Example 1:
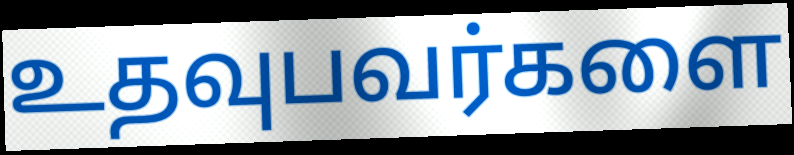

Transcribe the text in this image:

உதவுபவர்களை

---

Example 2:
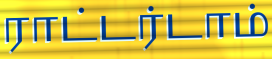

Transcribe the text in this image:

ராட்டர்டாம்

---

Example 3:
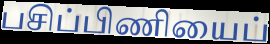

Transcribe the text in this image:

பசிப்பிணியைப்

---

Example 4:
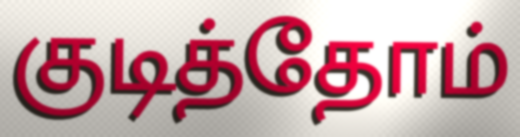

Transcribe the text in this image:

குடித்தோம்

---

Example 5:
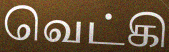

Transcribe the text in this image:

வெட்கி